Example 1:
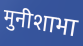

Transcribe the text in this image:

मुनीशाभा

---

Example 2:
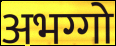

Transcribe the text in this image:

अभग्गो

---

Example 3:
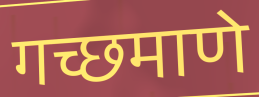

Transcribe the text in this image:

गच्छमाणे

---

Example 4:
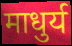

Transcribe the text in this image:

माधुर्य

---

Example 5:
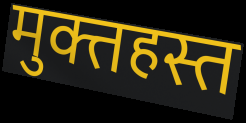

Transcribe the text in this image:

मुक्तहस्त